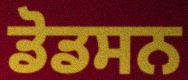
ਡੋਡਸਨ